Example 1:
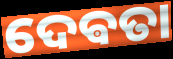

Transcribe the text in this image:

ଦେଵତା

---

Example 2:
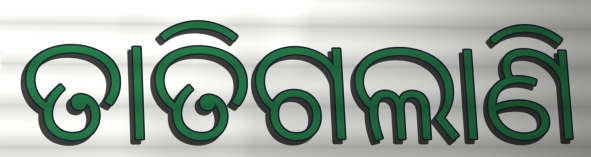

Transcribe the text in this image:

ତାତିଗଲାଣି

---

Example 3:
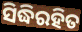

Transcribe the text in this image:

ସିଦ୍ଧିରହିତ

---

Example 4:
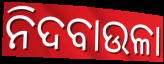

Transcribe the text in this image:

ନିଦବାଉଳା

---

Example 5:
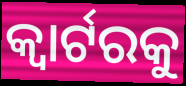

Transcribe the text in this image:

କ୍ୱାର୍ଟରକୁ